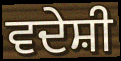
ਵਦੇਸ਼ੀ